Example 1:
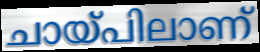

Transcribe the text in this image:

ചായ്പിലാണ്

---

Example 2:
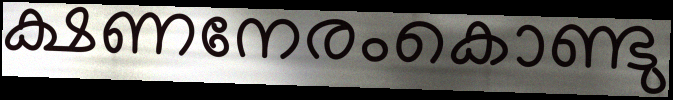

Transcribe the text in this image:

ക്ഷണനേരംകൊണ്ടു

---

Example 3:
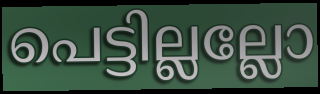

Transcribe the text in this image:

പെട്ടില്ലല്ലോ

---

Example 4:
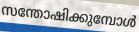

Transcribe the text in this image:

സന്തോഷിക്കുമ്പോൾ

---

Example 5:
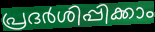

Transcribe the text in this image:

പ്രദർശിപ്പിക്കാം